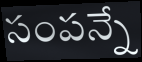
సంపన్నే